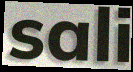
sali